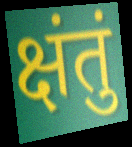
क्षंतुं